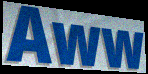
Aww